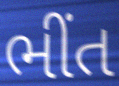
ભીંત